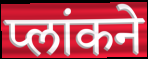
प्लांकने